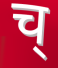
च्